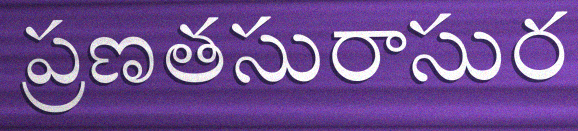
ప్రణతసురాసుర